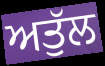
ਅਤੁੱਲ